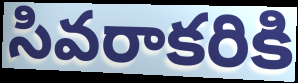
సివరాకరికి